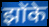
झोंके